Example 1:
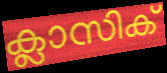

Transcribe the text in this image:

ക്ലാസിക്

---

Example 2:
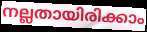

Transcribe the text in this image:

നല്ലതായിരിക്കാം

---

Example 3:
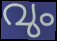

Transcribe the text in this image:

വും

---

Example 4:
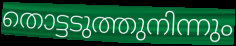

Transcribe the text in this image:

തൊട്ടടുത്തുനിന്നും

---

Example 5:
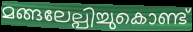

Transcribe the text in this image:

മങ്ങലേല്പിച്ചുകൊണ്ട്